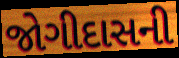
જોગીદાસની